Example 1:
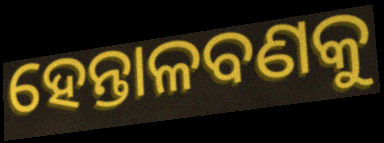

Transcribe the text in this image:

ହେନ୍ତାଳବଣକୁ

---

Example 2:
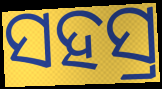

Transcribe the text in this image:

ସହସ୍ର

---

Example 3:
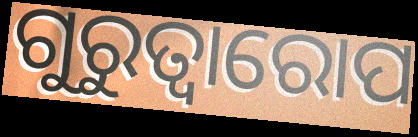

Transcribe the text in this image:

ଗୁରୁତ୍ୱାରୋପ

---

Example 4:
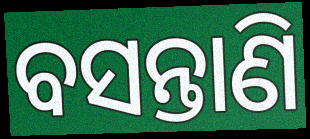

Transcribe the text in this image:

ବସନ୍ତାଣି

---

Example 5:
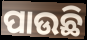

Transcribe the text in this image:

ପାଉଛି